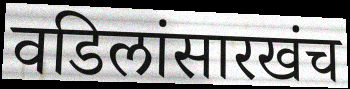
वडिलांसारखंच